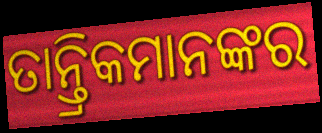
ତାନ୍ତ୍ରିକମାନଙ୍କର